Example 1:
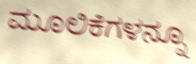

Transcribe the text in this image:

ಮೂಲಿಕೆಗಳನ್ನೂ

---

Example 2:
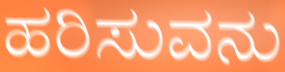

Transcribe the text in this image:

ಹರಿಸುವನು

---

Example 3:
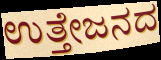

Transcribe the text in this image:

ಉತ್ತೇಜನದ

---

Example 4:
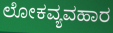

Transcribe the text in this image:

ಲೋಕವ್ಯವಹಾರ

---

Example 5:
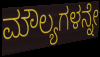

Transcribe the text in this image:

ಮೌಲ್ಯಗಳನ್ನೇ